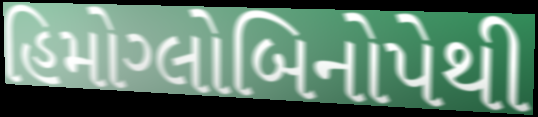
હિમોગ્લોબિનોપેથી